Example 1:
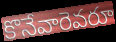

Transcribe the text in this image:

కొనేవారెవరూ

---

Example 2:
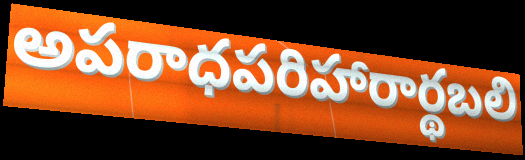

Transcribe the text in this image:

అపరాధపరిహారార్థబలి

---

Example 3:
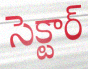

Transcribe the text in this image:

సెక్టార్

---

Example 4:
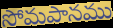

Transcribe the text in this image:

సోమపానము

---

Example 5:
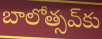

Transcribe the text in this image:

బాలోత్సవ్‌కు